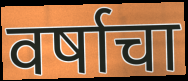
वर्षाचा